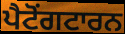
ਪੈਟੋਂਗਟਾਰਨ